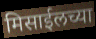
मिसाईलच्या